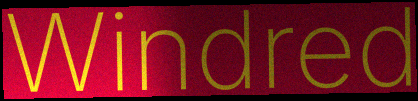
Windred